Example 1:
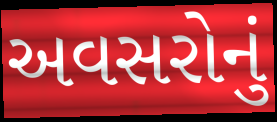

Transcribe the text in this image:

અવસરોનું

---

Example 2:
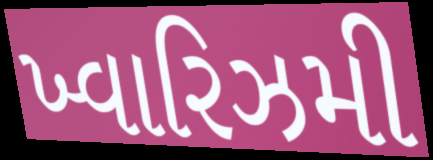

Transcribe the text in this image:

ખ્વારિઝમી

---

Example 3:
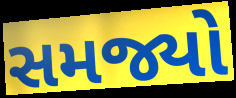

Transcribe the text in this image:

સમજ્યો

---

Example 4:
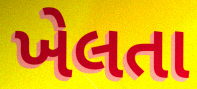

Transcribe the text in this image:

ખેલતા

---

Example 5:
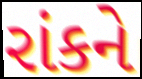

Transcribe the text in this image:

રાંકને